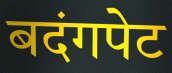
बदंगपेट